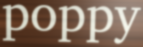
poppy